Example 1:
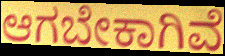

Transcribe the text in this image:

ಆಗಬೇಕಾಗಿವೆ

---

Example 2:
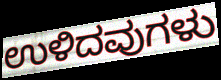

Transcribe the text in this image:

ಉಳಿದವುಗಳು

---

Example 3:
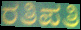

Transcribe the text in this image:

ರತಿಪತಿ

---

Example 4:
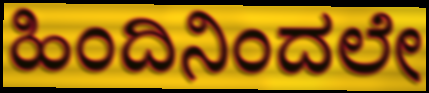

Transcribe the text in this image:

ಹಿಂದಿನಿಂದಲೇ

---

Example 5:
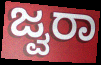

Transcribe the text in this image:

ಜ್ವರಾ